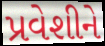
પ્રવેશીને